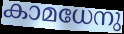
കാമധേനു